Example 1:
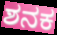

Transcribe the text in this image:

ಶನಕ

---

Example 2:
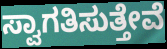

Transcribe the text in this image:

ಸ್ವಾಗತಿಸುತ್ತೇವೆ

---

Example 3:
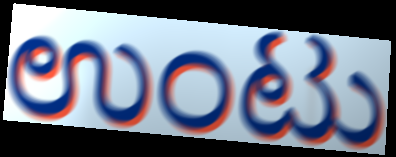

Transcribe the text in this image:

ಉಂಟು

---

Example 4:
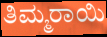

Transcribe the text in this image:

ತಿಮ್ಮರಾಯಿ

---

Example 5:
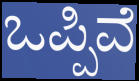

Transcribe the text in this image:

ಒಪ್ಪಿವೆ